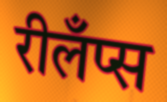
रीलँप्स